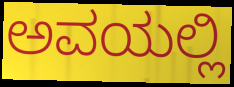
ಅವಯಲ್ಲಿ